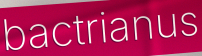
bactrianus